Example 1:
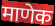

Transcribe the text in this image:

माणेक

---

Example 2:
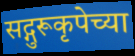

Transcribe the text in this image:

सद्गुरूकृपेच्या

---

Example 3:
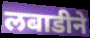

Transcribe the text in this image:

लबाडीने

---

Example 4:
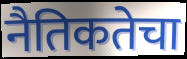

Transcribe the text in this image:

नैतिकतेचा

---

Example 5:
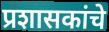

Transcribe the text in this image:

प्रशासकांचे